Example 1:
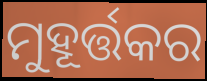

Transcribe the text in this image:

ମୁହୂର୍ତ୍ତକର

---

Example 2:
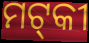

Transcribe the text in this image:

ମଟ୍‌କୀ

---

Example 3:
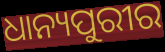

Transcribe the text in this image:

ଧାନ୍ୟପୁରୀର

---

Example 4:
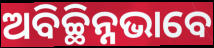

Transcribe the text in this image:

ଅବିଚ୍ଛିନ୍ନଭାବେ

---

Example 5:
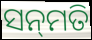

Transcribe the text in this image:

ସନ୍‌ମତି